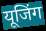
यूजिंग